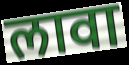
लावा